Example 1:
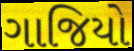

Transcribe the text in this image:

ગાજિયો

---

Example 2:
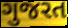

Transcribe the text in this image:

ગુજરત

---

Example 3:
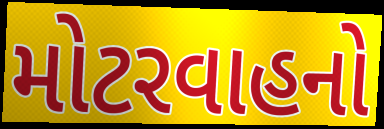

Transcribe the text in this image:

મોટરવાહનો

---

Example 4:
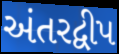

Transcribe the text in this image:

અંતરદ્વીપ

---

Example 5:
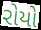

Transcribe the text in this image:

રોયો